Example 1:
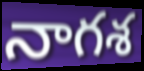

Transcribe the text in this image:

నాగశ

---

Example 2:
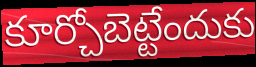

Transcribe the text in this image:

కూర్చోబెట్టేందుకు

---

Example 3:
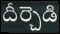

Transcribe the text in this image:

దీర్చెడి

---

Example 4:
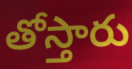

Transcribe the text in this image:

తోస్తారు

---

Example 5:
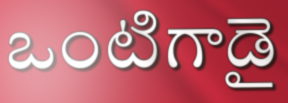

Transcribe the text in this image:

ఒంటిగాడై